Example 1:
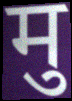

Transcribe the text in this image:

मु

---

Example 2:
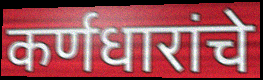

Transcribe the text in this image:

कर्णधारांचे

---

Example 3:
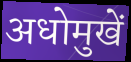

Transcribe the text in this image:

अधोमुखें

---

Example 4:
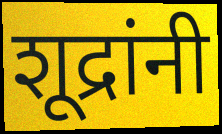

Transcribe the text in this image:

शूद्रांनी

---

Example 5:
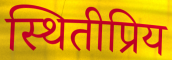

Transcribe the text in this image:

स्थितीप्रिय